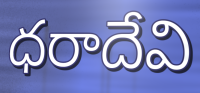
ధరాదేవి